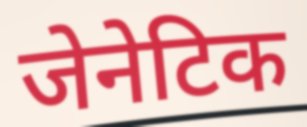
जेनेटिक